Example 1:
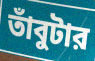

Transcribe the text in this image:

তাঁবুটার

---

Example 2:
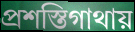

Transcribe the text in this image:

প্রশস্তিগাথায়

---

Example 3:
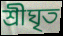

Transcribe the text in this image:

শ্রীঘৃত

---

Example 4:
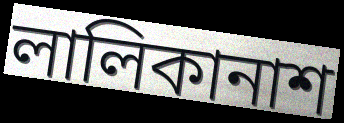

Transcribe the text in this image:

লালিকানাশ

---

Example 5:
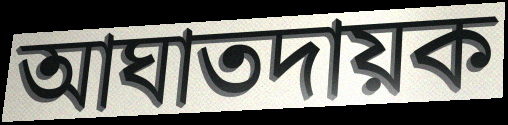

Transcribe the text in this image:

আঘাতদায়ক